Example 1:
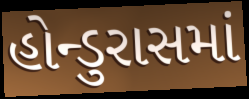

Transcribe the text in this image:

હોન્ડુરાસમાં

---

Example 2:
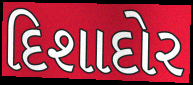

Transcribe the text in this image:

દિશાદોર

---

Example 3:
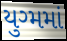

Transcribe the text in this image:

યુગ્મમાં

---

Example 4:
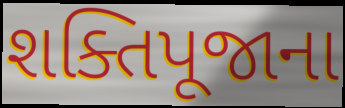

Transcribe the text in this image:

શક્તિપૂજાના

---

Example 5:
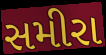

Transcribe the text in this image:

સમીરા